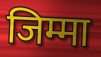
जिम्मा